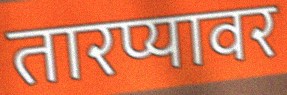
तारप्यावर